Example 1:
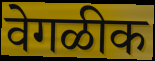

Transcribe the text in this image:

वेगळीक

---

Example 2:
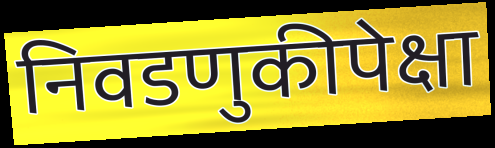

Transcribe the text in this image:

निवडणुकीपेक्षा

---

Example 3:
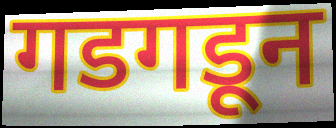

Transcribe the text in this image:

गडगडून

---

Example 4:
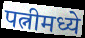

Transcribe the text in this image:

पत्नीमध्ये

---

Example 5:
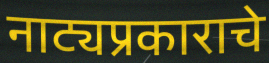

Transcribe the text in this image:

नाट्यप्रकाराचे